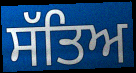
ਸੱਤਿਅ